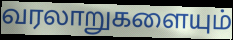
வரலாறுகளையும்